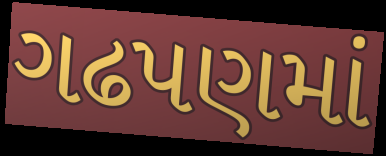
ગઢપણમાં